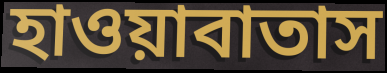
হাওয়াবাতাস